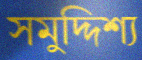
সমুদ্দিশ্য